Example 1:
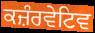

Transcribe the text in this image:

ਕਜ਼ੰਰਵੇਟਿਵ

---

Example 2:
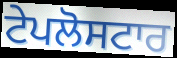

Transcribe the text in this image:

ਟੇਪਲੋਸਟਾਰ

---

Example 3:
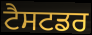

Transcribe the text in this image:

ਟੈਸਟਡਰ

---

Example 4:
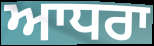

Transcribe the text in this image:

ਆਧਰਾ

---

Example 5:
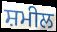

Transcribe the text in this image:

ਸ਼ਮੀਲ